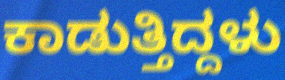
ಕಾಡುತ್ತಿದ್ದಳು